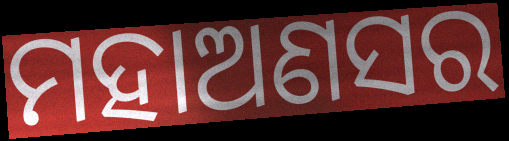
ମହାଅଣସର